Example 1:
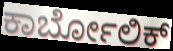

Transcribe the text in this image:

ಕಾರ್ಬೋಲಿಕ್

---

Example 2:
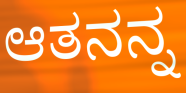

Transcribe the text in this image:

ಆತನನ್ನ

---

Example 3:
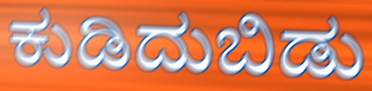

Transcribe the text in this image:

ಕುಡಿದುಬಿಡು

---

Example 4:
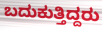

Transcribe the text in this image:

ಬದುಕುತ್ತಿದ್ದರು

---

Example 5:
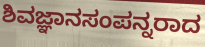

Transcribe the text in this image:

ಶಿವಜ್ಞಾನಸಂಪನ್ನರಾದ